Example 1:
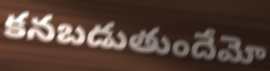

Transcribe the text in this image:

కనబడుతుందేమో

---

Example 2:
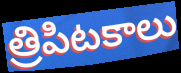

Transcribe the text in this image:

త్రిపిటకాలు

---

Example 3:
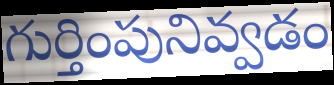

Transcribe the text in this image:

గుర్తింపునివ్వడం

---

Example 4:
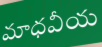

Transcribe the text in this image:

మాధవీయ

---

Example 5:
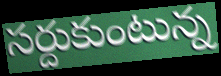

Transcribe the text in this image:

సర్దుకుంటున్న